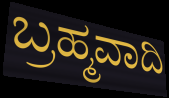
ಬ್ರಹ್ಮವಾದಿ